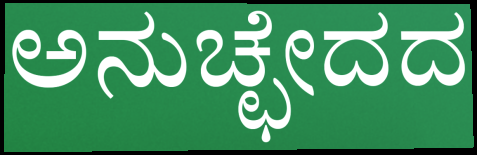
ಅನುಚ್ಛೇದದ